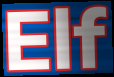
Elf